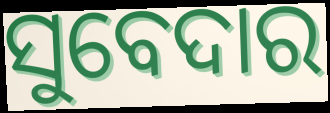
ସୁବେଦାର